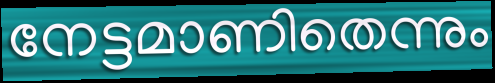
നേട്ടമാണിതെന്നും